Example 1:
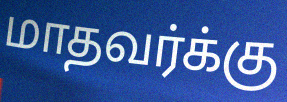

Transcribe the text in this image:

மாதவர்க்கு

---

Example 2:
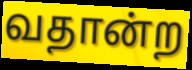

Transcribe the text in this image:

வதான்ற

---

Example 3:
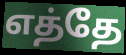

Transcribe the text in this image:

எத்தே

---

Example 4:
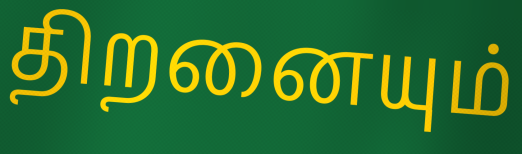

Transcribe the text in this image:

திறனையும்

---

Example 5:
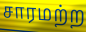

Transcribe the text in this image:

சாரமற்ற